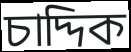
চাদ্দিক